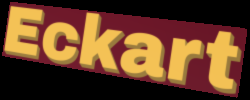
Eckart